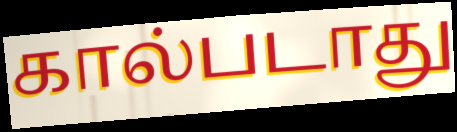
கால்படாது